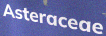
Asteraceae